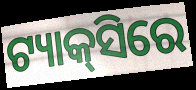
ଟ୍ୟାକ୍‍ସିରେ